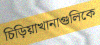
চিড়িয়াখানাগুলিকে